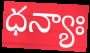
ధన్యాః